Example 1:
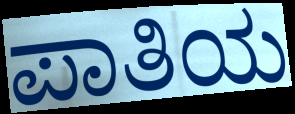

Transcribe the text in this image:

ಪಾತಿಯ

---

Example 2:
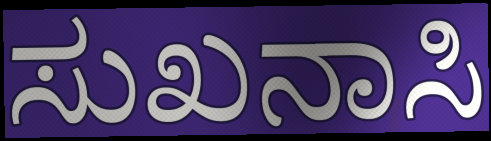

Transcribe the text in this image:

ಸುಖನಾಸಿ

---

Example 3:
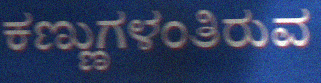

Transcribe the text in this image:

ಕಣ್ಣುಗಳಂತಿರುವ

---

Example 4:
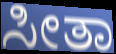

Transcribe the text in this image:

ಸೀತಾ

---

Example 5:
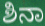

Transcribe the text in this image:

ಶಿನಾ